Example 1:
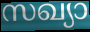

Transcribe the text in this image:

സഖ്യാ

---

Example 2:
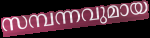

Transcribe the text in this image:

സമ്പന്നവുമായ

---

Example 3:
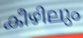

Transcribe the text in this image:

കീഴിലും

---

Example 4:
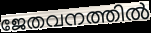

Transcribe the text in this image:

ജേതവനത്തിൽ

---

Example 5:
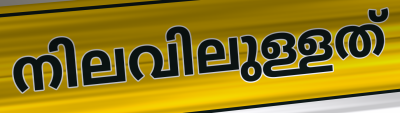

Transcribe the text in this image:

നിലവിലുള്ളത്